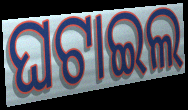
ଘଟାଇଲ